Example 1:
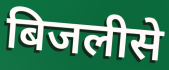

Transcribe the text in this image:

बिजलीसे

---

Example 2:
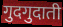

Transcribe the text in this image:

गुदगुदाती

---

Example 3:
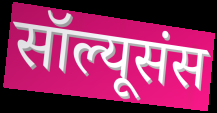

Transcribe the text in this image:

सॉल्यूसंस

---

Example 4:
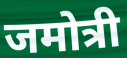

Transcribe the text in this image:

जमोत्री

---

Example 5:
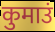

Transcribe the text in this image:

कुमाउं